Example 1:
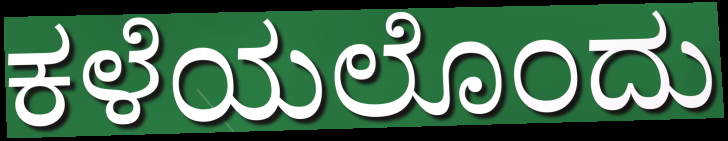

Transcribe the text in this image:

ಕಳೆಯಲೊಂದು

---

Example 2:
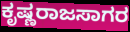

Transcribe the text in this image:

ಕೃಷ್ಣರಾಜಸಾಗರ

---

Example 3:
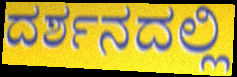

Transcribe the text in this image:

ದರ್ಶನದಲ್ಲಿ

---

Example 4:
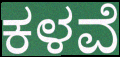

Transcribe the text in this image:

ಕಳವೆ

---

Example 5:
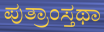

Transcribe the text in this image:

ಪುತ್ರಾಂಸ್ತಥಾ